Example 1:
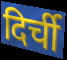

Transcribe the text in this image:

दिर्ची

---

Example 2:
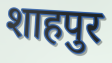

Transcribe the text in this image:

शाहपुर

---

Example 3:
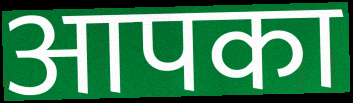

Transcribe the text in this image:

आपका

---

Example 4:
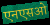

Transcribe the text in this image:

एनएसओ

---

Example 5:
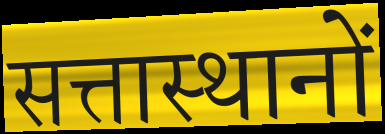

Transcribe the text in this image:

सत्तास्थानों